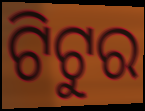
ଟିଟୁର